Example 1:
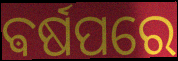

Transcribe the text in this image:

ଵର୍ଷପରେ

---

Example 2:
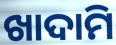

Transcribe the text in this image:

ଖାଦାମି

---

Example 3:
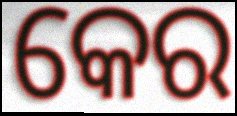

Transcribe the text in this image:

କେର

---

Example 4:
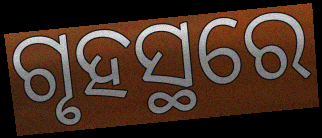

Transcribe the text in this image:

ଗୃହସ୍ଥରେ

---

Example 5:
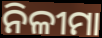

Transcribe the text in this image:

ନିଳୀମା